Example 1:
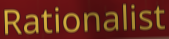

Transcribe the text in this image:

Rationalist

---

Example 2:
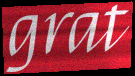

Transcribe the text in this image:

grat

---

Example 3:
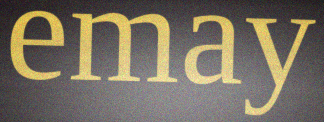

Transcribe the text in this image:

emay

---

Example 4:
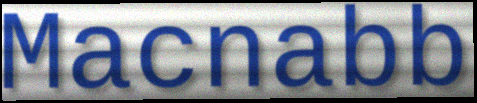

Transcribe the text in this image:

Macnabb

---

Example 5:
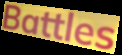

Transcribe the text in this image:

Battles